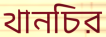
থানচির